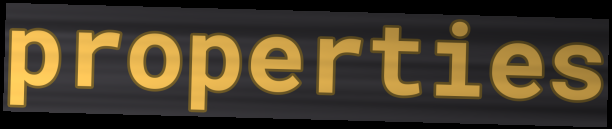
properties